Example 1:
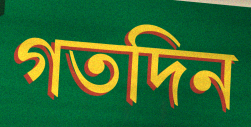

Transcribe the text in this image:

গতদিন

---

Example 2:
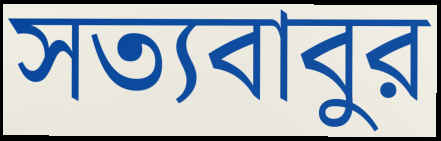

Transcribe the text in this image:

সত্যবাবুর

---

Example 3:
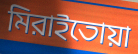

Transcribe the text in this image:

মিরাইতোয়া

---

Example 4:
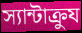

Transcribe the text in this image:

স্যান্টাক্রুয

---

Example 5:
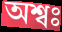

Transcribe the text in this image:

অশ্বঃ